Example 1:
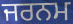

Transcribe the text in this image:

ਜਰਨਮ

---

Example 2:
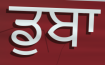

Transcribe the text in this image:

ਡੁਬਾ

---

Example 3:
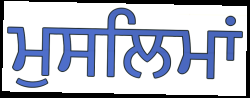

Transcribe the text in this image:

ਮੁਸਲਿਮਾਂ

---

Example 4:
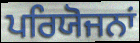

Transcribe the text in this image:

ਪਰਿਯੋਜਨਾਂ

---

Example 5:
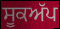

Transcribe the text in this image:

ਸੂਕਅੱਪ